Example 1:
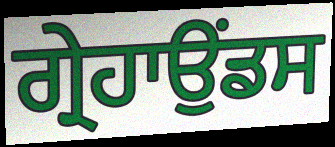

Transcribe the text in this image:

ਗ੍ਰੇਹਾਉਂਡਸ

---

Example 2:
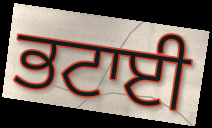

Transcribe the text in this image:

ਭਟਾਈ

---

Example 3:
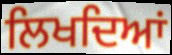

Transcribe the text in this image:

ਲਿਖਦਿਆਂ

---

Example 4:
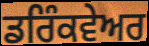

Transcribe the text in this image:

ਡਰਿੰਕਵੇਅਰ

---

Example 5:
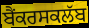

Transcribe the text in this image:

ਬੈਂਕਰਸਕਲੱਬ